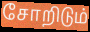
சோறிடும்